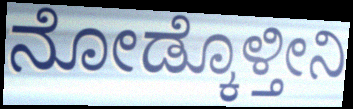
ನೋಡ್ಕೊಳ್ತೀನಿ